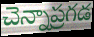
చెన్నాప్రగడ